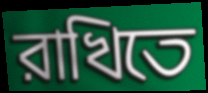
রাখিতে